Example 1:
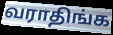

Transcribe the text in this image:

வராதிங்க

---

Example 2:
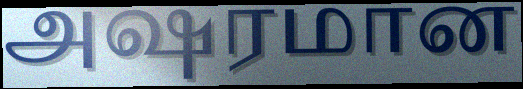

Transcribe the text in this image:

அஷரமான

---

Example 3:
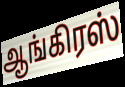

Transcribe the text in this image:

ஆங்கிரஸ்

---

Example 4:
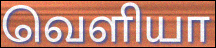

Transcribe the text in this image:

வெளியா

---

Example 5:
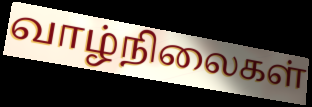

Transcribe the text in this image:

வாழ்நிலைகள்